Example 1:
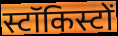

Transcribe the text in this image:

स्टॉकिस्टों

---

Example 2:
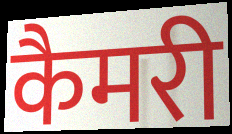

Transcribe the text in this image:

कैमरी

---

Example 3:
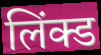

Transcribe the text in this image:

लिंक्ड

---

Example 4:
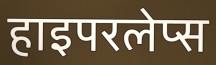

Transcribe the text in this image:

हाइपरलेप्स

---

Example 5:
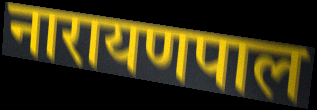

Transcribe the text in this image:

नारायणपाल